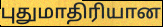
புதுமாதிரியான